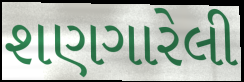
શણગારેલી